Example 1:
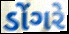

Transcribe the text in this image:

ડોંગરે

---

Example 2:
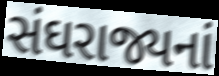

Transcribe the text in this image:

સંઘરાજ્યનાં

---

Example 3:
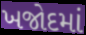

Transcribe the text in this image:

ખજોદમાં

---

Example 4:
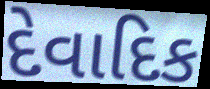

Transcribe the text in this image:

દેવાદિક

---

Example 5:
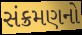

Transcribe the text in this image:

સંક્રમણનો